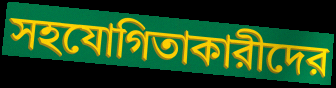
সহযোগিতাকারীদের